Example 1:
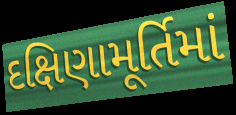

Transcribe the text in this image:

દક્ષિણામૂર્તિમાં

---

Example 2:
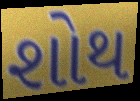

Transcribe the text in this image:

શોથ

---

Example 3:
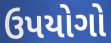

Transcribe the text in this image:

ઉપયોગો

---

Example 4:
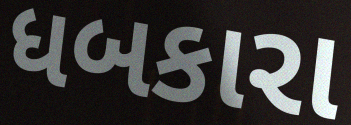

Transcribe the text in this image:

ધબકારા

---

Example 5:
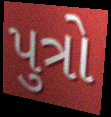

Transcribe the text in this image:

પુત્રો